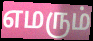
எமரும்